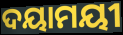
ଦୟାମୟୀ